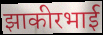
झाकीरभाई